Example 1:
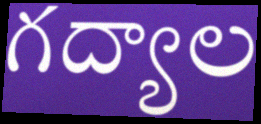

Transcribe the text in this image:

గద్యాల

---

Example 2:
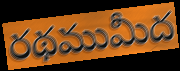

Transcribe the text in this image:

రథముమీద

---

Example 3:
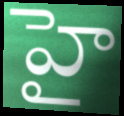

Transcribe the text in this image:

హై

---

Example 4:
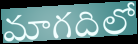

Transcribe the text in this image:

మాగదిలో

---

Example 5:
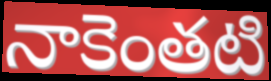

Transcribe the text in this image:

నాకెంతటి